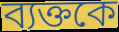
ব্যক্তকে